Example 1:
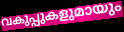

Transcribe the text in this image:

വകുപ്പുകളുമായും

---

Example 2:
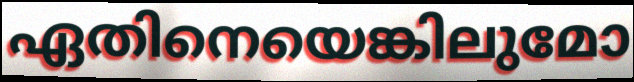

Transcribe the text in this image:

ഏതിനെയെങ്കിലുമോ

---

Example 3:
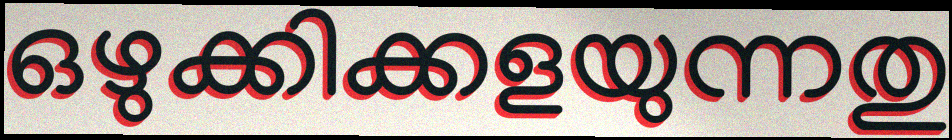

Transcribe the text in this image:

ഒഴുക്കിക്കളയുന്നതു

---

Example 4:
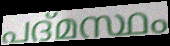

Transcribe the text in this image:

പദ്മസ്ഥം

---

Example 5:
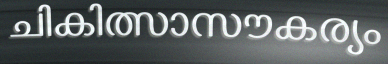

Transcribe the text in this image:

ചികിത്സാസൗകര്യം